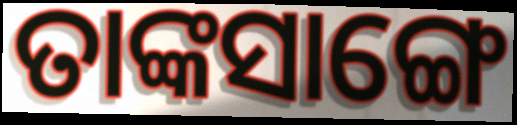
ତାଙ୍କସାଙ୍ଗେ